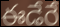
ఈడేరే